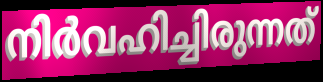
നിർവഹിച്ചിരുന്നത്